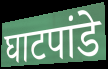
घाटपांडे